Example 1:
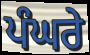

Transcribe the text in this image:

ਪੰਘਰੇ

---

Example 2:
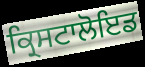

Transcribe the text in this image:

ਕ੍ਰਿਸਟਾਲੋਇਡ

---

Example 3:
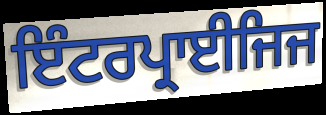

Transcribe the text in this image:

ਇੰਟਰਪ੍ਰਾਈਜਿਜ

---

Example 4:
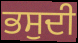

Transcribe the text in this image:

ਭਸੁਦੀ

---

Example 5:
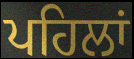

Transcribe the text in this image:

ਪਹਿਲਾਂ